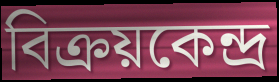
বিক্রয়কেন্দ্র